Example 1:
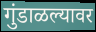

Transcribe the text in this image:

गुंडाळल्यावर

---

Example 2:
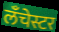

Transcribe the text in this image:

लँचेस्टर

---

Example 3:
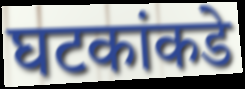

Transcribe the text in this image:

घटकांकडे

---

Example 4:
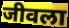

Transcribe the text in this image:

जीवला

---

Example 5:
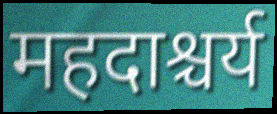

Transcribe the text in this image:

महदाश्चर्य